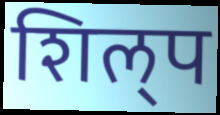
शिल्प